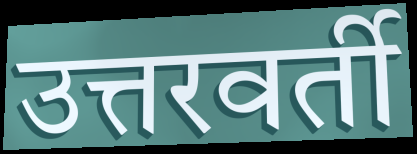
उत्तरवर्ती